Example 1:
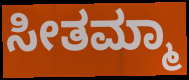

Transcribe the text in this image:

ಸೀತಮ್ಮಾ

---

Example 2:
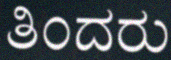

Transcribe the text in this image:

ತಿಂದರು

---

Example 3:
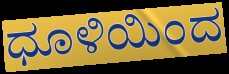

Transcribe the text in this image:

ಧೂಳಿಯಿಂದ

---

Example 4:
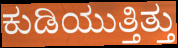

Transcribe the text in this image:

ಕುಡಿಯುತ್ತಿತ್ತು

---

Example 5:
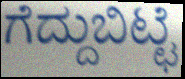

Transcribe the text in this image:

ಗೆದ್ದುಬಿಟ್ಟೆ